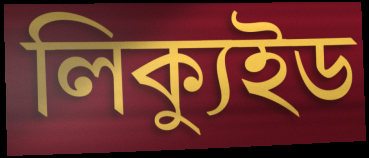
লিক্যুইড